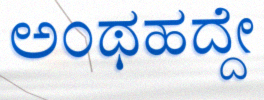
ಅಂಥಹದ್ದೇ